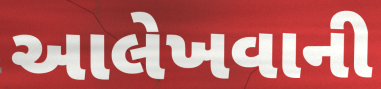
આલેખવાની